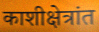
काशीक्षेत्रांत